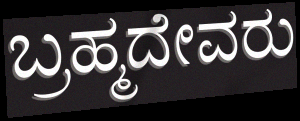
ಬ್ರಹ್ಮದೇವರು